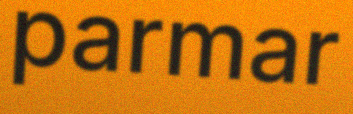
parmar